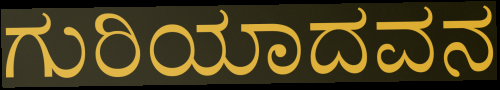
ಗುರಿಯಾದವನ